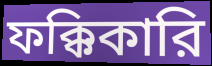
ফক্কিকারি